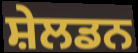
ਸ਼ੇਲਡਨ